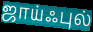
ஜாய்ஃபுல்